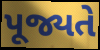
પૂજ્યતે